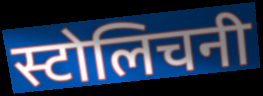
स्टोलिचनी